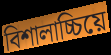
বিশালাচ্চিয়ে